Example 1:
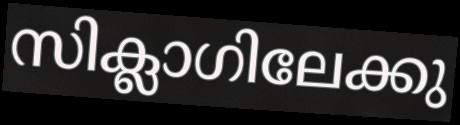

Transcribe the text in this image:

സിക്ലാഗിലേക്കു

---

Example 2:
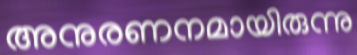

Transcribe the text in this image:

അനുരണനമായിരുന്നു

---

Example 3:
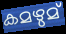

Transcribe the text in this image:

കമഴുമ്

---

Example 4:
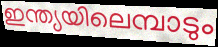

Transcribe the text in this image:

ഇന്ത്യയിലെമ്പാടും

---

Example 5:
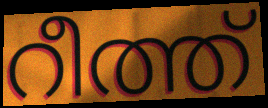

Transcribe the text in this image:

റീത്ത്